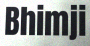
Bhimji